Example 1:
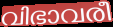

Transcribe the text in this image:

വിഭാവരീ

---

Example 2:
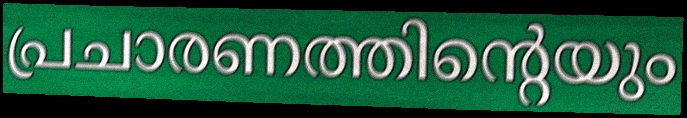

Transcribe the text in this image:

പ്രചാരണത്തിന്റെയും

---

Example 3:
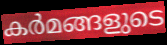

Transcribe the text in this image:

കർമങ്ങളുടെ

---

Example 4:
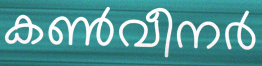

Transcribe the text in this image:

കൺവീനർ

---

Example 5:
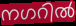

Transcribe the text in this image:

നഗറിൽ